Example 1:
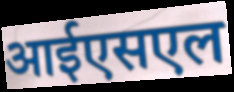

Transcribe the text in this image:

आईएसएल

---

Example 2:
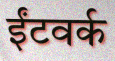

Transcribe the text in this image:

ईंटवर्क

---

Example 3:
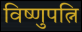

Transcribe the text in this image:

विष्णुपत्नि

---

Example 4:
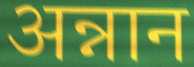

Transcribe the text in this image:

अन्नान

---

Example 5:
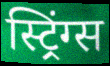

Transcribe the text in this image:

स्ट्रिंग्स